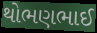
થોભણભાઈ